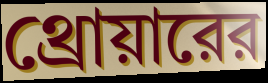
থ্রোয়ারের